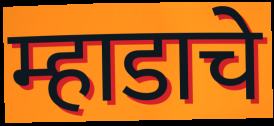
म्हाडाचे